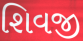
શિવજી